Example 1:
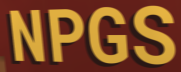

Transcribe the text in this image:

NPGS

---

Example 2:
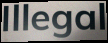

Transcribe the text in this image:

Illegal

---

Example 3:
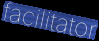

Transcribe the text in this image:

facilitator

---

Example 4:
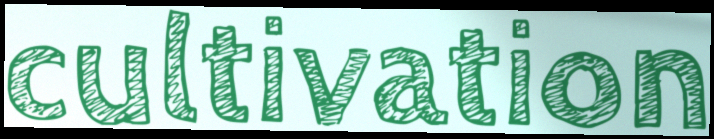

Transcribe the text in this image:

cultivation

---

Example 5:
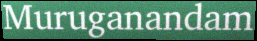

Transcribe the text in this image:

Muruganandam